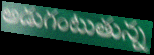
అడుగంటుతున్న